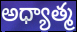
అధ్యాత్మ